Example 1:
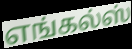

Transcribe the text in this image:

எங்கல்ஸ்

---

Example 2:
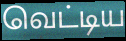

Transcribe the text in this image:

வெட்டிய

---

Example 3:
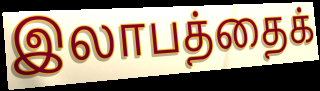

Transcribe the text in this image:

இலாபத்தைக்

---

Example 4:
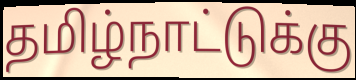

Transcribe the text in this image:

தமிழ்நாட்டுக்கு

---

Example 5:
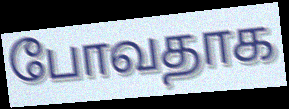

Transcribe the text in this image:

போவதாக